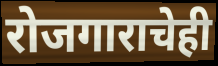
रोजगाराचेही